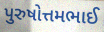
પુરુષોત્તમભાઈ